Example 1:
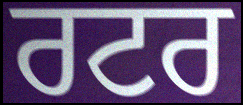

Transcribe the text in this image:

ਰਟਰ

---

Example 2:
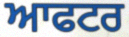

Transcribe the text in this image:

ਆਫਟਰ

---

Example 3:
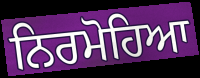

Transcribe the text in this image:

ਨਿਰਮੋਹਿਆ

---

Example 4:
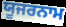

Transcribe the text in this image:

ਯੂਜਰਨਾਮ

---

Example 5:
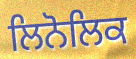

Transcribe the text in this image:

ਲਿਨੋਲਿਕ